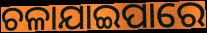
ଚଳାଯାଇପାରେ